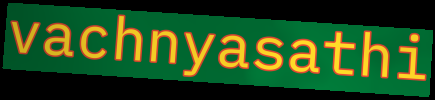
vachnyasathi